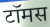
टॉमस